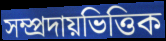
সম্প্ৰদায়ভিত্তিক